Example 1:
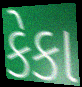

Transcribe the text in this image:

કેકા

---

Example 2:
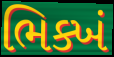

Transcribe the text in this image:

ભિક્ખં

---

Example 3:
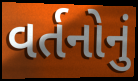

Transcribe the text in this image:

વર્તનોનું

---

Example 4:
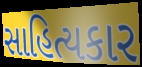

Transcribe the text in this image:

સાહિત્યકાર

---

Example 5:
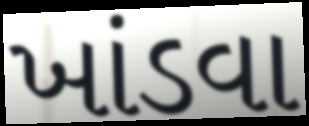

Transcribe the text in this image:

ખાંડવા